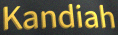
Kandiah